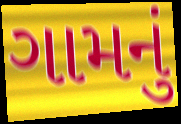
ગામનું